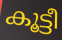
കൂട്ടീ